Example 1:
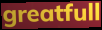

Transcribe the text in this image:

greatfull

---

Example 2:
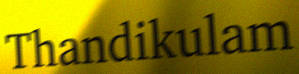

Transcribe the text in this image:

Thandikulam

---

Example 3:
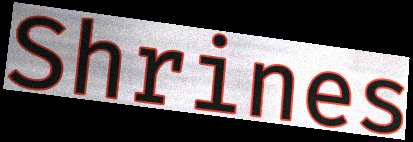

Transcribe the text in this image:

Shrines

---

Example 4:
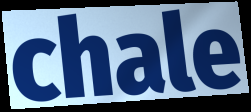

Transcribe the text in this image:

chale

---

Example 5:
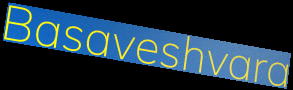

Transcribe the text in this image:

Basaveshvara